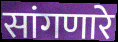
सांगणारे